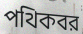
পথিকবর